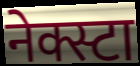
नेक्स्टा